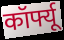
कॉर्फ्यू